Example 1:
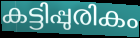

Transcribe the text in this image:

കട്ടിപ്പുരികം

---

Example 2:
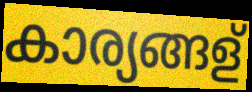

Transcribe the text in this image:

കാര്യങ്ങള്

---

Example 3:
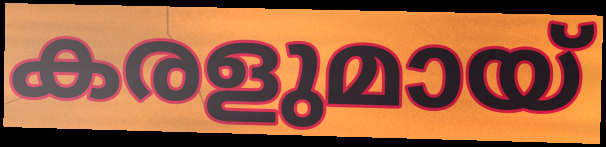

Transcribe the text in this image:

കരളുമായ്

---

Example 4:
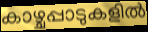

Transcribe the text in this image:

കാഴ്ചപ്പാടുകളിൽ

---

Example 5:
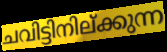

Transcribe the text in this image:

ചവിട്ടിനില്ക്കുന്ന